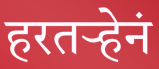
हरतर्‍हेनं